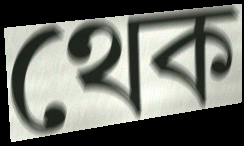
থেক